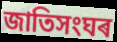
জাতিসংঘৰ